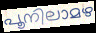
പൂനിലാമഴ